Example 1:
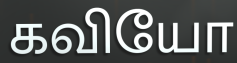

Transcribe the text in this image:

கவியோ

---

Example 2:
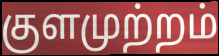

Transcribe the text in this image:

குளமுற்றம்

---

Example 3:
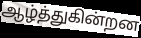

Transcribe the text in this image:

ஆழ்த்துகின்றன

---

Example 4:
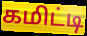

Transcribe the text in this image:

கமிட்டி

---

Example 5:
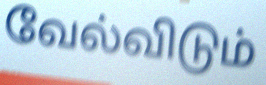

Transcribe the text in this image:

வேல்விடும்